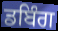
ਡਬਿੰਗ